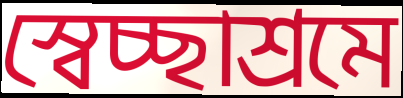
স্বেচ্ছাশ্রমে